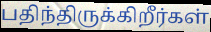
பதிந்திருக்கிறீர்கள்